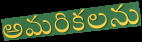
అమరికలను